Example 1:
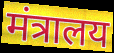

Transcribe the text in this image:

मंत्रालय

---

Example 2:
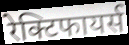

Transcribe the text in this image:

रेक्टिफायर्स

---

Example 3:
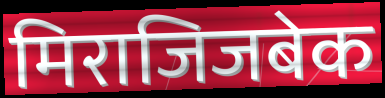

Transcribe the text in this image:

मिराजिजबेक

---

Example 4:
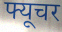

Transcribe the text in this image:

फ्यूचर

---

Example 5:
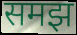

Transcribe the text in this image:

समझ